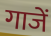
गाजें